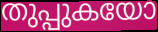
തുപ്പുകയോ